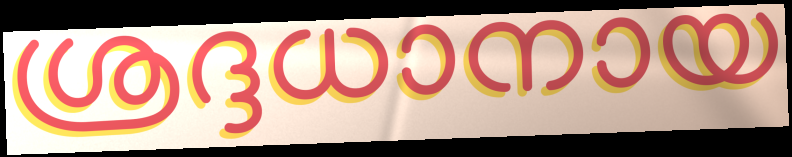
ശ്രദ്ദധാനായ